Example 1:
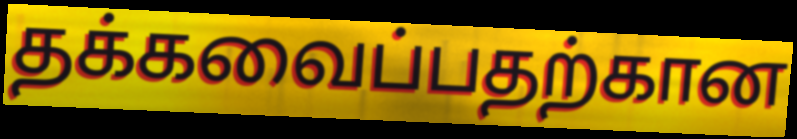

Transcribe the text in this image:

தக்கவைப்பதற்கான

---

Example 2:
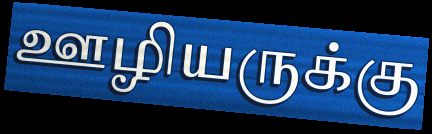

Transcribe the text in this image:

ஊழியருக்கு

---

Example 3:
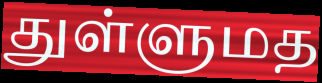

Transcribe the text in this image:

துள்ளுமத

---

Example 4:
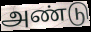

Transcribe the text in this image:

அண்டு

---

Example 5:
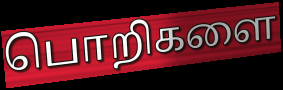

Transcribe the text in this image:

பொறிகளை